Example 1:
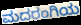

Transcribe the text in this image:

ಮದರಂಗಿಯ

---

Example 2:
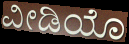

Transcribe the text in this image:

ವೀಡಿಯೊ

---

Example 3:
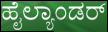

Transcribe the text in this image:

ಹೈಲ್ಯಾಂಡರ್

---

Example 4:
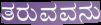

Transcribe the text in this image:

ತರುವವನು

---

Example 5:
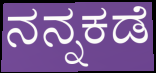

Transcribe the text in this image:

ನನ್ನಕಡೆ